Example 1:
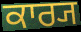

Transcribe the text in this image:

ਕਾਰ੍ਯ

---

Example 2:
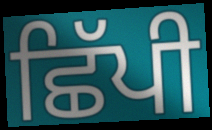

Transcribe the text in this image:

ਛਿੱਪੀ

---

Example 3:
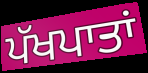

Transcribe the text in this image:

ਪੱਖਪਾਤਾਂ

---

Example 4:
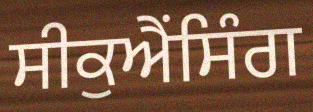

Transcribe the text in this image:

ਸੀਕੁਐਂਸਿੰਗ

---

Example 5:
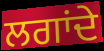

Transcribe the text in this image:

ਲਗਾਂਦੇ